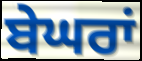
ਬੇਘਰਾਂ